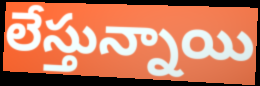
లేస్తున్నాయి